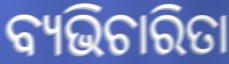
ବ୍ୟଭିଚାରିତା